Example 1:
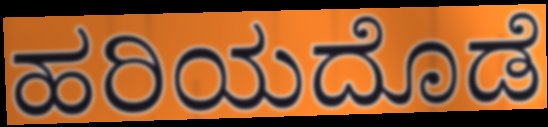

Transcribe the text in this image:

ಹರಿಯದೊಡೆ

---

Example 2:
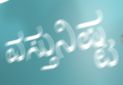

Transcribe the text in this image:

ವಸ್ತುನಿಷ್ಟ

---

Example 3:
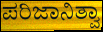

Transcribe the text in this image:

ಪರಿಜಾನಿತ್ವಾ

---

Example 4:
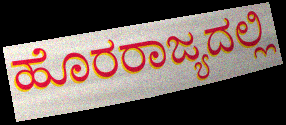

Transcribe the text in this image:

ಹೊರರಾಜ್ಯದಲ್ಲಿ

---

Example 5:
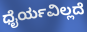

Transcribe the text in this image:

ಧೈರ್ಯವಿಲ್ಲದೆ